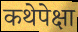
कथेपेक्षा